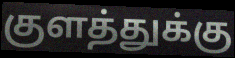
குளத்துக்கு